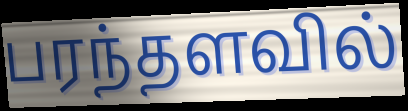
பரந்தளவில்